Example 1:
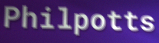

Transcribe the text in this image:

Philpotts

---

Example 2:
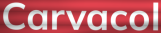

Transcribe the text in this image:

Carvacol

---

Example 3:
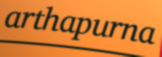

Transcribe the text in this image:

arthapurna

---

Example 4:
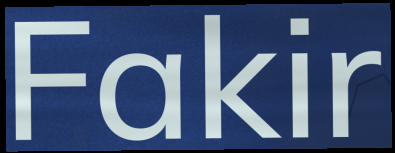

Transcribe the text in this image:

Fakir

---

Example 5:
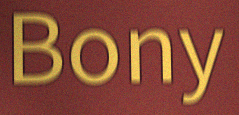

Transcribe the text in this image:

Bony